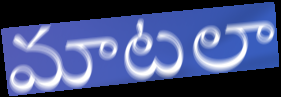
మాటలా